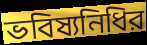
ভবিষ্যনিধির